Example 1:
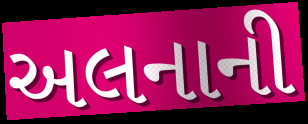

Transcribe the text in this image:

અલનાની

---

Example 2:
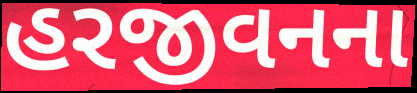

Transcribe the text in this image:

હરજીવનના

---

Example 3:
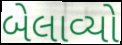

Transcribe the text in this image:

બેલાવ્યો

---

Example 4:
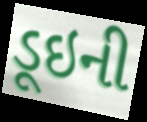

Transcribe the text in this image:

ડૂઇની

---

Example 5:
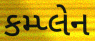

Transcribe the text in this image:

કમ્પ્લેન